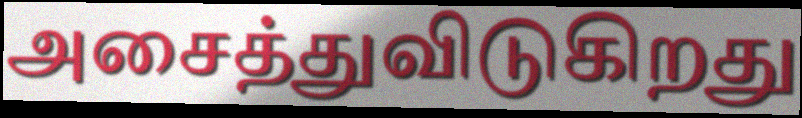
அசைத்துவிடுகிறது